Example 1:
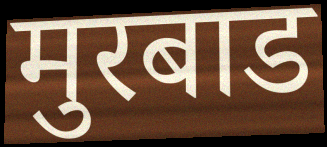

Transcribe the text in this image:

मुरबाड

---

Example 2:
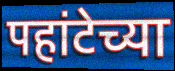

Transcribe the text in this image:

पहांटेच्या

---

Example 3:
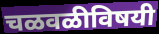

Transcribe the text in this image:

चळवळीविषयी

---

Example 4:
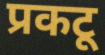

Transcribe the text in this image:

प्रकटू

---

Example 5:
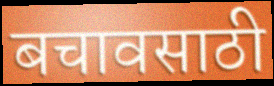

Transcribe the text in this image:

बचावसाठी